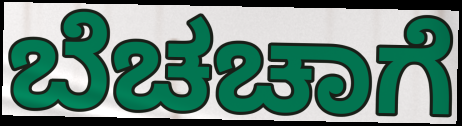
ಬೆಚಚಾಗೆ